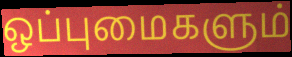
ஒப்புமைகளும்